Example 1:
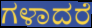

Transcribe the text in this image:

ಗಳಾದರೆ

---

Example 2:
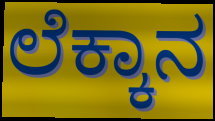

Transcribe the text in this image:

ಲೆಕ್ಕಾನ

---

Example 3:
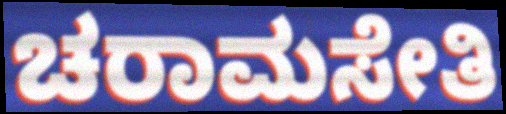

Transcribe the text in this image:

ಚರಾಮಸೇತಿ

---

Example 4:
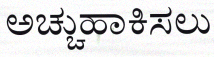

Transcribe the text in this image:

ಅಚ್ಚುಹಾಕಿಸಲು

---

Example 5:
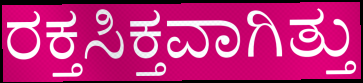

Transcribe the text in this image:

ರಕ್ತಸಿಕ್ತವಾಗಿತ್ತು